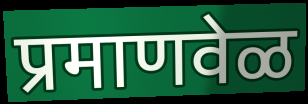
प्रमाणवेळ